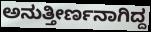
ಅನುತ್ತೀರ್ಣನಾಗಿದ್ದ